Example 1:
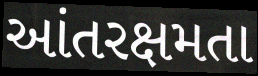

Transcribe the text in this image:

આંતરક્ષમતા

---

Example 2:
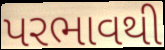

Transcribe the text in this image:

પરભાવથી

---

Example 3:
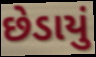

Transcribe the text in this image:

છેડાયું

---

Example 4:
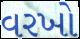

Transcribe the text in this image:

વરખો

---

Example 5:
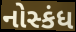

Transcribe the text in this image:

નોસ્કંધ